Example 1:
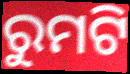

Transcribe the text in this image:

ରୁମଟି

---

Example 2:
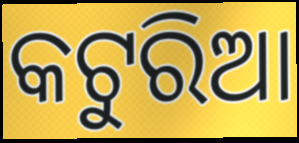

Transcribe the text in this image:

କଟୁରିଆ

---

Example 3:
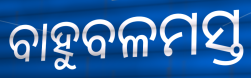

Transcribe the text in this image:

ବାହୁବଳମସ୍ତ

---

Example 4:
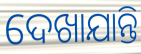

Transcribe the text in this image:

ଦେଖାଯାନ୍ତି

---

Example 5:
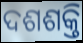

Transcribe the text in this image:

ଦଶଶକ୍ତି